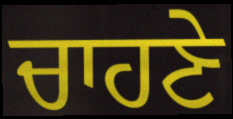
ਚਾਹਣੇ